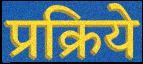
प्रक्रिये